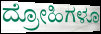
ದ್ರೋಹಿಗಳೂ